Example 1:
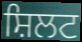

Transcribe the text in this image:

ਸ਼ਿਲਟ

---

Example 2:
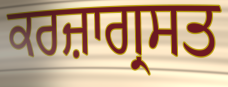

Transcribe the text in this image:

ਕਰਜ਼ਾਗ੍ਰਸਤ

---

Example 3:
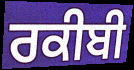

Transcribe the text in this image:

ਰਕੀਬੀ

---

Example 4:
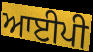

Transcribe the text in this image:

ਆਈਪੀ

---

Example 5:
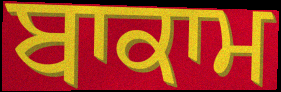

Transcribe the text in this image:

ਬਾਕਾਮ